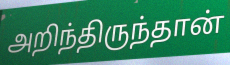
அறிந்திருந்தான்